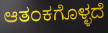
ಆತಂಕಗೊಳ್ಳದೆ